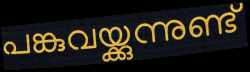
പങ്കുവയ്ക്കുന്നുണ്ട്